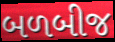
બળબીજ